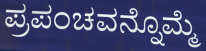
ಪ್ರಪಂಚವನ್ನೊಮ್ಮೆ